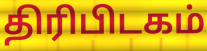
திரிபிடகம்